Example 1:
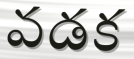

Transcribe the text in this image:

వడక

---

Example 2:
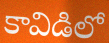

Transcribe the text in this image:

కావిడిలో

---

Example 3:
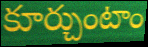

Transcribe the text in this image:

కూర్చుంటాం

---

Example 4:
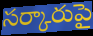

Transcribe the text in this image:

సర్కారుపై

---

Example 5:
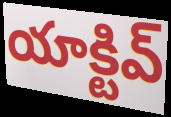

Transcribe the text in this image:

యాక్టివ్